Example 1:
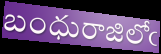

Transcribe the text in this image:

బంధురాజిలోఁ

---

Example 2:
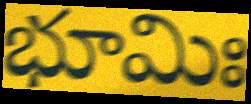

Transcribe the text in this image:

భూమిః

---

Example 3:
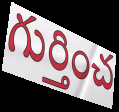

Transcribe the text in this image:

గుర్తించ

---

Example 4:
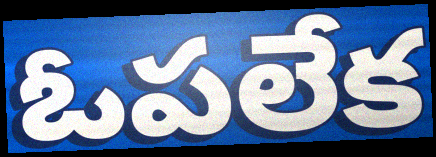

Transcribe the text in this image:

ఓపలేక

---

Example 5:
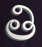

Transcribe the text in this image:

తి